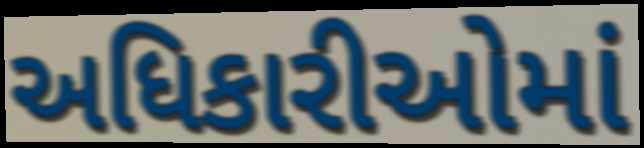
અધિકારીઓમાં